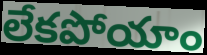
లేకపోయాం